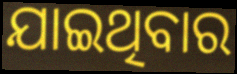
ଯାଇଥିବାର